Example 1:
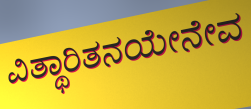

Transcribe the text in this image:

ವಿತ್ಥಾರಿತನಯೇನೇವ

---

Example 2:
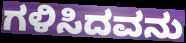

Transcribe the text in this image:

ಗಳಿಸಿದವನು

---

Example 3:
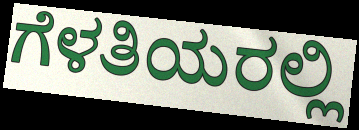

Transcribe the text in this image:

ಗೆಳತಿಯರಲ್ಲಿ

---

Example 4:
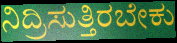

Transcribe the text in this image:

ನಿದ್ರಿಸುತ್ತಿರಬೇಕು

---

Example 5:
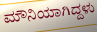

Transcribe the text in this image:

ಮೌನಿಯಾಗಿದ್ದಳು